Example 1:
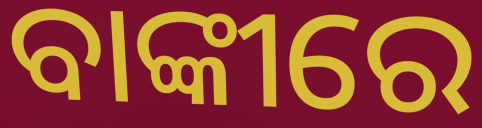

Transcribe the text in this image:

ବାଙ୍କୀରେ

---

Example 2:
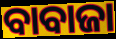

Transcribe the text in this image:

ବାବାଜା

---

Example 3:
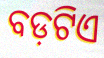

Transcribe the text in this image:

ବଡ଼ଟିଏ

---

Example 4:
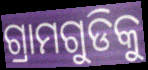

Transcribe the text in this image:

ଗ୍ରାମଗୁଡିକୁ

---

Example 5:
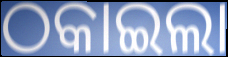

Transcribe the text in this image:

ଠକାଇଲା